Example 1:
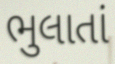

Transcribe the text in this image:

ભુલાતાં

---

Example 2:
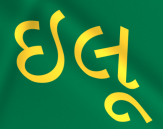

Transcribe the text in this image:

ઇલૂ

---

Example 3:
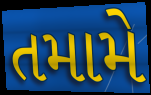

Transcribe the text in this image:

તમામે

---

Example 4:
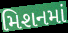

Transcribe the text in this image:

મિશનમાં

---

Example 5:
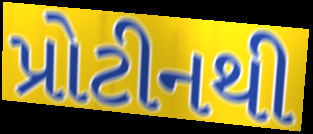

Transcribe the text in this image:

પ્રોટીનથી